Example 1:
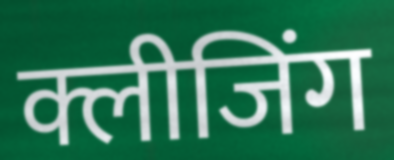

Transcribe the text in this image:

क्‍लीजिंग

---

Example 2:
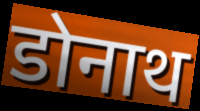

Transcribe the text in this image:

डोनाथ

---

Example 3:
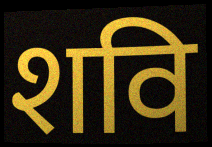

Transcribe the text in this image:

शवि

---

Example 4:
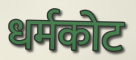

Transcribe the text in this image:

धर्मकोट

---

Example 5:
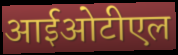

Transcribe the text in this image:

आईओटीएल